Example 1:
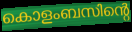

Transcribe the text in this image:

കൊളംബസിന്റെ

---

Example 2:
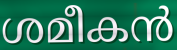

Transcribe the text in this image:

ശമീകൻ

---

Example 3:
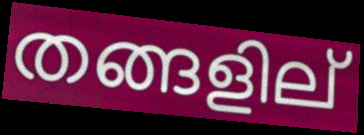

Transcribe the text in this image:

തങ്ങളില്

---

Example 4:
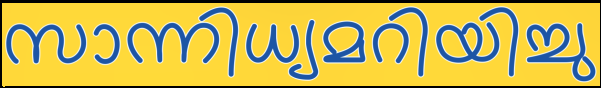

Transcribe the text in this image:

സാന്നിധ്യമറിയിച്ചു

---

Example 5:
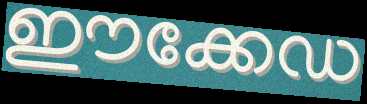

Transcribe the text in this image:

ഈക്കേഡ